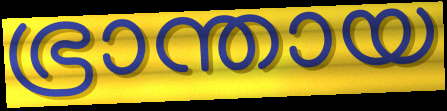
ഭ്രാന്തായ